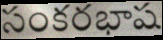
సంకరభాష